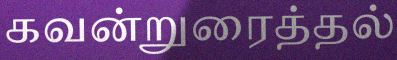
கவன்றுரைத்தல்